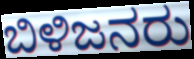
ಬಿಳಿಜನರು